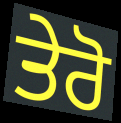
ਤੇਰੋ